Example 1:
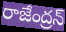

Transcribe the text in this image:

రాజేంద్రన్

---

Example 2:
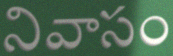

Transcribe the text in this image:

నివాసం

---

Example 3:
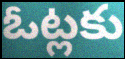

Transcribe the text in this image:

ఓట్లకు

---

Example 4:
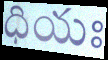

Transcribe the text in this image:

ధియః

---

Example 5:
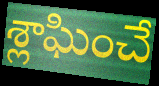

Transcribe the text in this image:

శ్లాఘించే